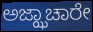
ಅಜ್ಝಾಚಾರೇ